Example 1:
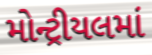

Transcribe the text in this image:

મોન્ટ્રીયલમાં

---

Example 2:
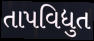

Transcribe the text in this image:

તાપવિદ્યુત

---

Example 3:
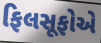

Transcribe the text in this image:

ફિલસૂફોએ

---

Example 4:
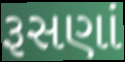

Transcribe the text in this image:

રૂસણાં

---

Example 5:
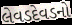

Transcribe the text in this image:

લેવડદેવડનો